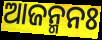
ଆଜନ୍ମନଃ